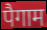
पैगाम